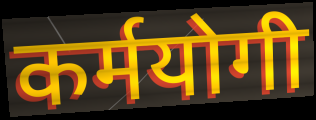
कर्मयोगी